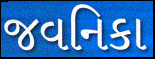
જવનિકા